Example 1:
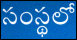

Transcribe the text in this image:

సంస్థలో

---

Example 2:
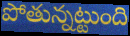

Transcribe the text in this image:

పోతున్నట్టుంది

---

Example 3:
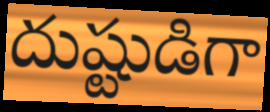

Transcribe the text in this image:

దుష్టుడిగా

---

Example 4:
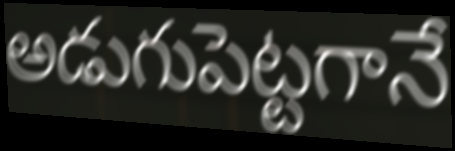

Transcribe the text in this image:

అడుగుపెట్టగానే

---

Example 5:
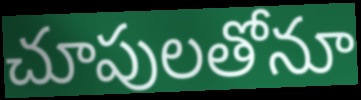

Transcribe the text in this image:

చూపులతోనూ